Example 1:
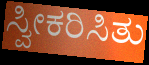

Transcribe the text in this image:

ಸ್ವೀಕರಿಸಿತು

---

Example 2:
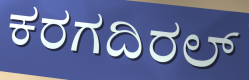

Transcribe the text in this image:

ಕರಗದಿರಲ್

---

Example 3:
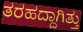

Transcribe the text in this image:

ತರಹದ್ದಾಗಿತ್ತು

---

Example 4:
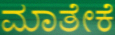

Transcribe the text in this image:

ಮಾತೇಕೆ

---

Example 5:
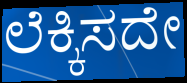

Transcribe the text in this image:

ಲೆಕ್ಕಿಸದೇ